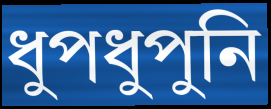
ধুপধুপুনি